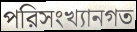
পরিসংখ্যানগত